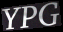
YPG